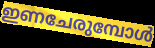
ഇണചേരുമ്പോൾ